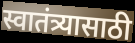
स्वातंत्र्यासाठी